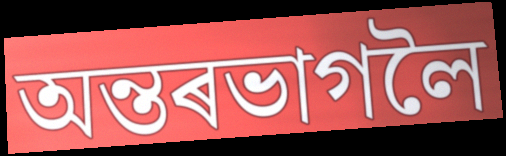
অন্তৰভাগলৈ